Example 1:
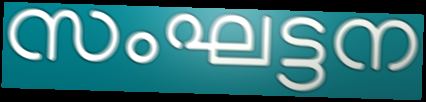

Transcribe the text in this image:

സംഘട്ടന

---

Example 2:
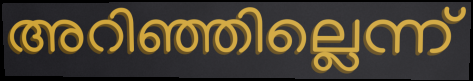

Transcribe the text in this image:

അറിഞ്ഞില്ലെന്ന്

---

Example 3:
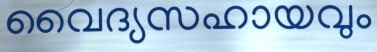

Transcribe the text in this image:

വൈദ്യസഹായവും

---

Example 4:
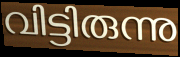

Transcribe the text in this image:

വിട്ടിരുന്നു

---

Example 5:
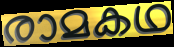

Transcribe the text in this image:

രാമകഥ